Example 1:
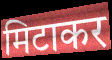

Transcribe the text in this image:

मिटाकर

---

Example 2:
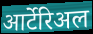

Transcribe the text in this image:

आर्टेरिअल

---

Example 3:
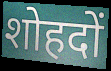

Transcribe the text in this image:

शोहदों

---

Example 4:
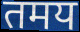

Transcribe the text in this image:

तमय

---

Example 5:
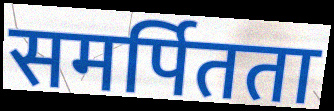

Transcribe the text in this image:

समर्पितता